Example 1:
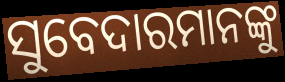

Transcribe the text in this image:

ସୁବେଦାରମାନଙ୍କୁ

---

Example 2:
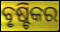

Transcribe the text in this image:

ବୃଷ୍ଚିକର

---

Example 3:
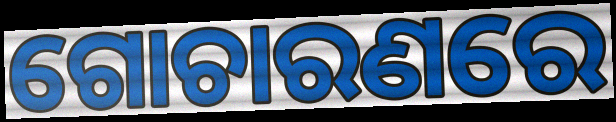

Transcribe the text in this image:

ଗୋଚାରଣରେ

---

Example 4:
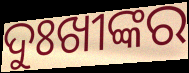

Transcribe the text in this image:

ଦୁଃଖୀଙ୍କର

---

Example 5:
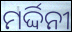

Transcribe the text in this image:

ମର୍ଦ୍ଦିନୀ